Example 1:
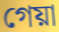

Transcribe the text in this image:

গেয়া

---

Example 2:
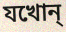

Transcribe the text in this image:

যখোন্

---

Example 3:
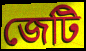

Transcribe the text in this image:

জেটি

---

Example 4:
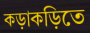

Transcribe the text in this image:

কড়াকড়িতে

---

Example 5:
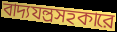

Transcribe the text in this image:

বাদ্যযন্ত্রসহকারে